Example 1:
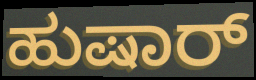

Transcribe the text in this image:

ಹುಷಾರ್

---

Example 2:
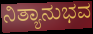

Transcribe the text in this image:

ನಿತ್ಯಾನುಭವ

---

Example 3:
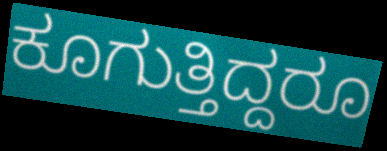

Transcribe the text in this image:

ಕೂಗುತ್ತಿದ್ದರೂ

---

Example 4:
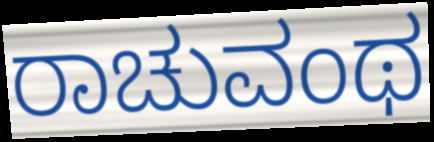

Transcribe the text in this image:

ರಾಚುವಂಥ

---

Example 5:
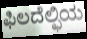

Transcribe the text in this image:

ಫಿಲದೆಲ್ಫಿಯ